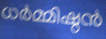
ധർമ്മിഷ്ഠൻ